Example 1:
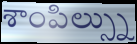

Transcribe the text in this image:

శాంపిల్స్ను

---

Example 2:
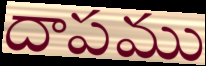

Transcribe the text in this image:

దాపము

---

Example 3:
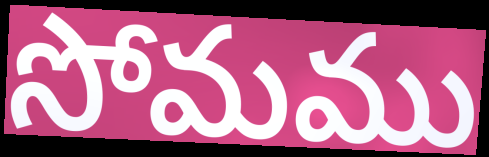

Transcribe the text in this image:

సోమము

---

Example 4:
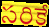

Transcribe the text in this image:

సరికే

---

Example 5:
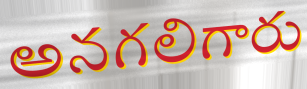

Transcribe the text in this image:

అనగలిగారు